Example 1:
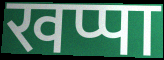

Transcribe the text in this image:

खप्पा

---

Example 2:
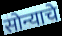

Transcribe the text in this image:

सोन्याचे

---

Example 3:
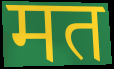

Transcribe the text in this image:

मत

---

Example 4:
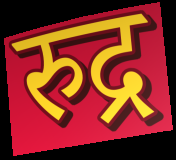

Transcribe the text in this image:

रुद्र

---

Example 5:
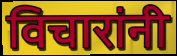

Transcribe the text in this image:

विचारांनी